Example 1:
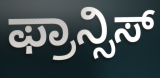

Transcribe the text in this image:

ಫ್ರಾನ್ಸಿಸ್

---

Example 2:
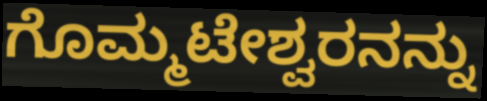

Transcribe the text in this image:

ಗೊಮ್ಮಟೇಶ್ವರನನ್ನು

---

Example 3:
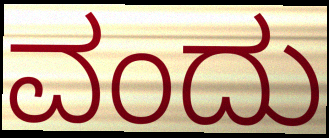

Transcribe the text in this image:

ವಂದು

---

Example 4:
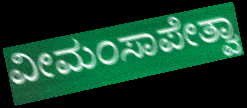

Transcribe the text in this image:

ವೀಮಂಸಾಪೇತ್ವಾ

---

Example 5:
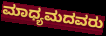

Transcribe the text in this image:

ಮಾಧ್ಯಮದವರು